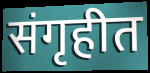
संगृहीत